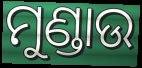
ମୁଣ୍ଡାଉ